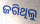
ଜଗିଥିଲୁ